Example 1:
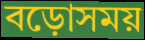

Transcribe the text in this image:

বড়োসময়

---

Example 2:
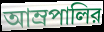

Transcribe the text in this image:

আম্রপালির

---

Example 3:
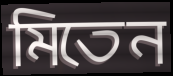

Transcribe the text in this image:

মিতেন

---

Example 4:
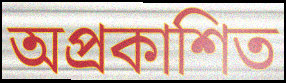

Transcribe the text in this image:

অপ্রকাশিত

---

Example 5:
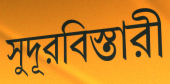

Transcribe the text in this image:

সুদূরবিস্তারী